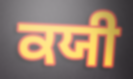
ਕਯੀ